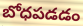
బోధపడడం